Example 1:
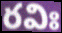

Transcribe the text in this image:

రవిః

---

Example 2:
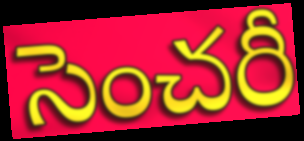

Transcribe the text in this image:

సెంచరీ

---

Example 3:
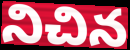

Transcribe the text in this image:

నిచిన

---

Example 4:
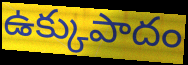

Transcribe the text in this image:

ఉక్కుపాదం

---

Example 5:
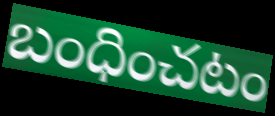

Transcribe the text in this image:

బంధించటం